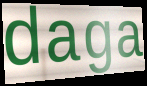
daga